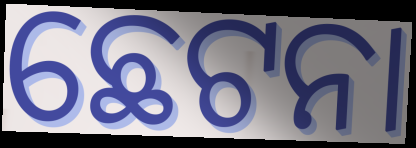
ଛେଟନା